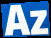
Az